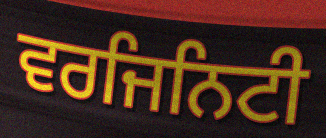
ਵਰਜਿਨਿਟੀ